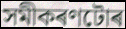
সমীকৰণটোৰ